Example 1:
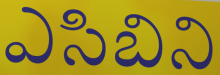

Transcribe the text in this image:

ఎసిబిని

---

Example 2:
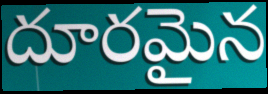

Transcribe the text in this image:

దూరమైన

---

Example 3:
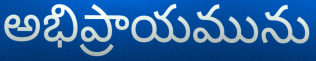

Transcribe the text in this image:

అభిప్రాయమును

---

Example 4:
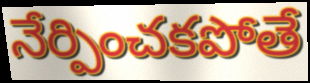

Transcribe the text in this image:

నేర్పించకపోతే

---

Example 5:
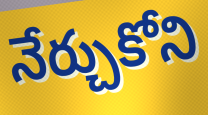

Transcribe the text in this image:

నేర్చుకోని